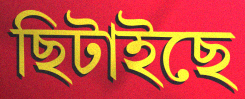
ছিটাইছে